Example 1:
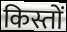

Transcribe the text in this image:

किस्तों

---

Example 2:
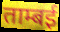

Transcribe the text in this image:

ताम्बई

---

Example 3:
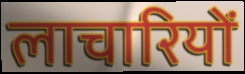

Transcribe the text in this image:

लाचारियों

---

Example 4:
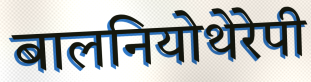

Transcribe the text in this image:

बालनियोथेरेपी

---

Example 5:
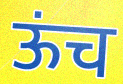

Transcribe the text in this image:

ऊंच